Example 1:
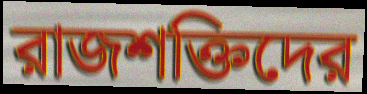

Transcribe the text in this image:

রাজশক্তিদের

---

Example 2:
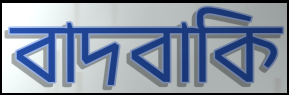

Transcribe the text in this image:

বাদবাকি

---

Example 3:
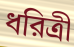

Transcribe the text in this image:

ধরিত্রী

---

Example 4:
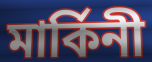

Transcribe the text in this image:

মার্কিনী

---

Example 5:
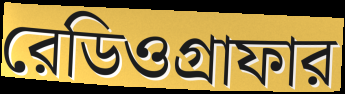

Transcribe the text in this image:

রেডিওগ্রাফার